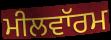
ਮੀਲਵਾੱਰਮ